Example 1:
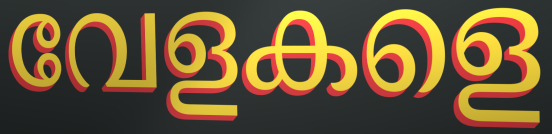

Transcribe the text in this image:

വേളകളെ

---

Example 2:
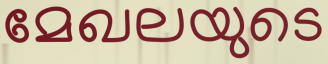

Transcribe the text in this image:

മേഖലയുടെ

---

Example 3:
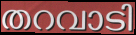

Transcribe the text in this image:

തറവാടി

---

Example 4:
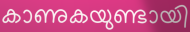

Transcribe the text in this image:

കാണുകയുണ്ടായി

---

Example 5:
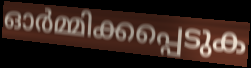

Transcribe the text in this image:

ഓർമ്മിക്കപ്പെടുക